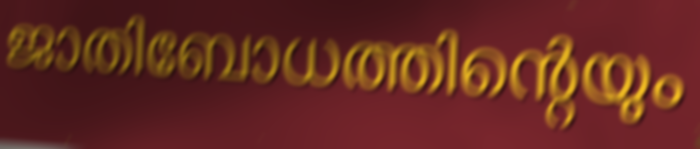
ജാതിബോധത്തിന്റെയും